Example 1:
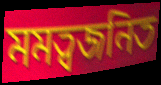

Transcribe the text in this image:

মমত্বজনিত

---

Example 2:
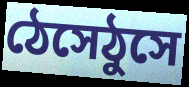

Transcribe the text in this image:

ঠেসেঠুসে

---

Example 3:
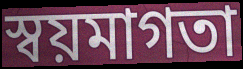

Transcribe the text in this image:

স্বয়মাগতা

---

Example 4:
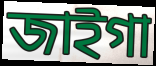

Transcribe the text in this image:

জাইগা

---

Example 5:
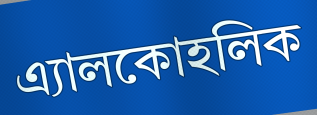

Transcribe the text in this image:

এ্যালকোহলিক